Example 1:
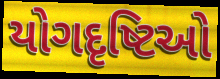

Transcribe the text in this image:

યોગદૃષ્ટિઓ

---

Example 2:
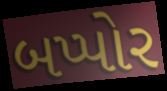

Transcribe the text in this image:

બપ્પોર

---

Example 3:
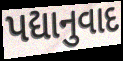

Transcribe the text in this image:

પદ્યાનુવાદ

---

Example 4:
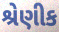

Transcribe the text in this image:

શ્રેણીક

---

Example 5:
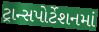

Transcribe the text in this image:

ટ્રાન્સપોર્ટેશનમાં